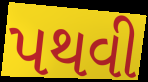
પથવી